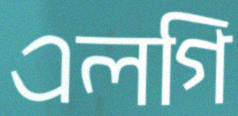
এলগি